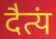
दैत्यं